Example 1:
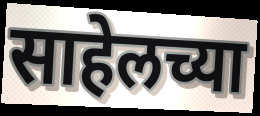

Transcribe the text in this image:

साहेलच्या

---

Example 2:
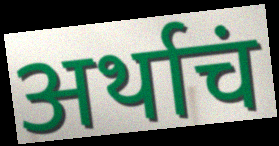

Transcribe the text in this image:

अर्थाचं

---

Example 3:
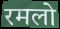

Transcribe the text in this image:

रमलो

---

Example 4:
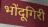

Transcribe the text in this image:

भोंदूगिरी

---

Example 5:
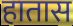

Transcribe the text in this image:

हातास